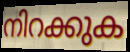
നിറക്കുക